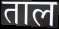
ताल